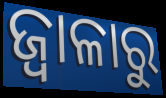
ଜ୍ଵାଳାରୁ